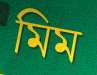
মিম